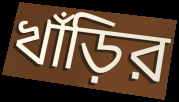
খাঁড়ির